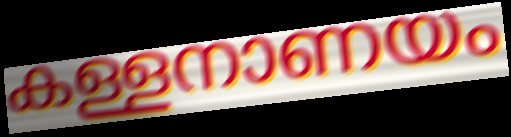
കള്ളനാണയം